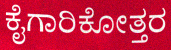
ಕೈಗಾರಿಕೋತ್ತರ